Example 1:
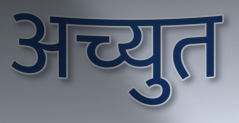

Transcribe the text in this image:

अच्‍युत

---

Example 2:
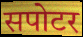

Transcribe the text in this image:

सपोटर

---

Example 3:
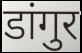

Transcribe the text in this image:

डांगुर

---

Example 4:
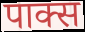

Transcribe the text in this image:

पाक्स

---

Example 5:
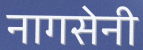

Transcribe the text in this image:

नागसेनी